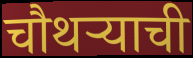
चौथऱ्याची